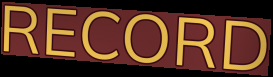
RECORD